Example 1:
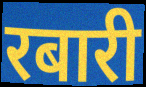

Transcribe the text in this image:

रबारी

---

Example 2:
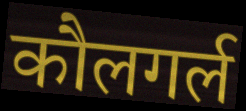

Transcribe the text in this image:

कौलगर्ल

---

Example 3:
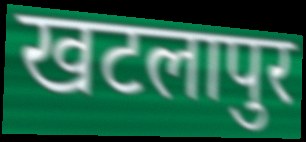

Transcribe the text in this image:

खटलापुर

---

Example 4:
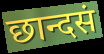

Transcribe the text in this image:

छान्दसं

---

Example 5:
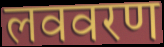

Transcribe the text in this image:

लववरण